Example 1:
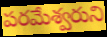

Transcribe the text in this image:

పరమేశ్వరుని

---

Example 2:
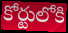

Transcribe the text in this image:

కోర్టులోకి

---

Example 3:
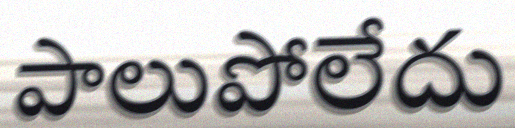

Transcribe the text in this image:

పాలుపోలేదు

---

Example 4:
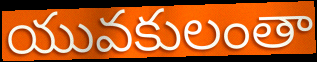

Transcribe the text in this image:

యువకులంతా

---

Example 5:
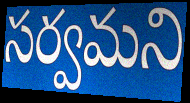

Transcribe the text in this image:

సర్వమని